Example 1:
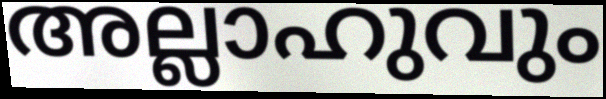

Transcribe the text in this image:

അല്ലാഹുവും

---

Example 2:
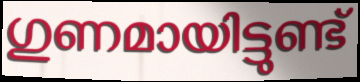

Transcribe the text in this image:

ഗുണമായിട്ടുണ്ട്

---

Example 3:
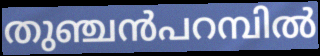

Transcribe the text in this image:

തുഞ്ചൻപറമ്പിൽ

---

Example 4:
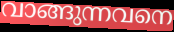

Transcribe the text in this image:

വാങ്ങുന്നവനെ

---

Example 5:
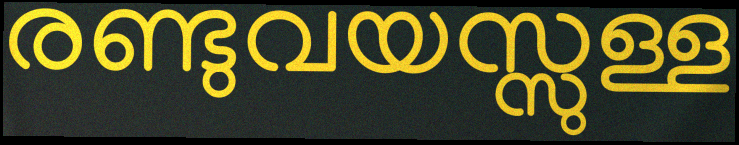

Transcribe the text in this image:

രണ്ടുവയസ്സുള്ള